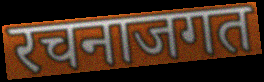
रचनाजगत